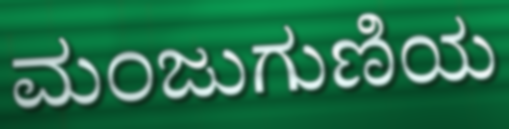
ಮಂಜುಗುಣಿಯ